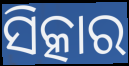
ସିତ୍କାର